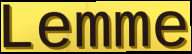
Lemme